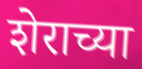
शेराच्या